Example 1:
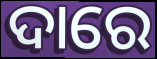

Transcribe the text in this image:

ଦାରେ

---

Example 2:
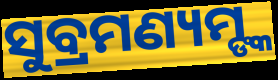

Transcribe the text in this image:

ସୁବ୍ରମଣ୍ୟମ୍ଙ୍କ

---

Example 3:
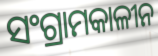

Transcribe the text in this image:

ସଂଗ୍ରାମକାଳୀନ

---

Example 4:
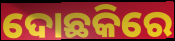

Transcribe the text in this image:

ଦୋଛକିରେ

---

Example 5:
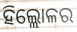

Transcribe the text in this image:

ହିଲ୍ଲୋଳର